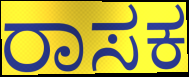
ರಾಸಕ